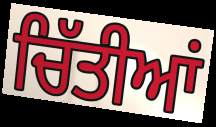
ਚਿੱਤੀਆਂ